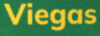
Viegas